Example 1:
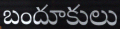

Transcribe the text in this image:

బందూకులు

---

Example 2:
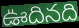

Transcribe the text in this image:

ఊదినది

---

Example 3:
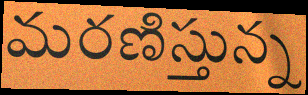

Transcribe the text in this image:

మరణిస్తున్న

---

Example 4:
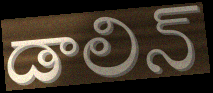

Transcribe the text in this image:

డాలిన్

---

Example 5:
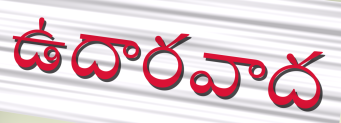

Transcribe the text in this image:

ఉదారవాద